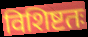
विशिष्टतः